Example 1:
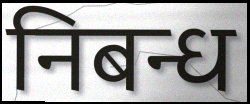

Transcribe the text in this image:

निबन्‍ध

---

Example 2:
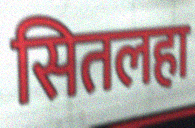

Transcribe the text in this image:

सितलहा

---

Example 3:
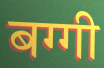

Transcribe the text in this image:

बग्‍गी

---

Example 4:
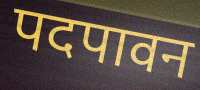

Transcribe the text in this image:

पदपावन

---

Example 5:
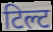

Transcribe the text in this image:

टिल्ट